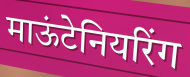
माऊंटेनियरिंग